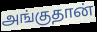
அங்குதான்